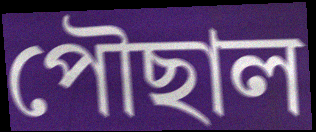
পৌছাল